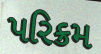
પરિક્રમ